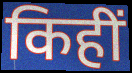
किहीं